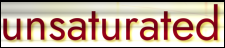
unsaturated